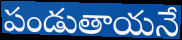
పండుతాయనే